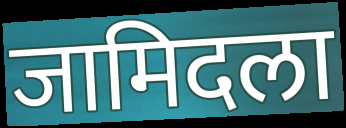
जामिदला